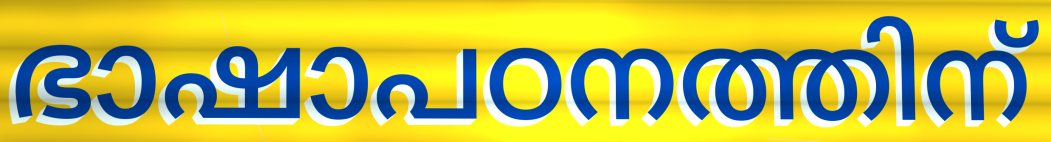
ഭാഷാപഠനത്തിന്